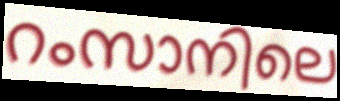
റംസാനിലെ